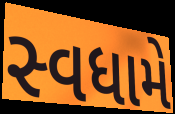
સ્વધામે